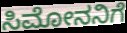
ಸಿಮೋನನಿಗೆ